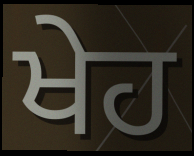
ਖੇਹ